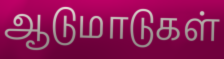
ஆடுமாடுகள்